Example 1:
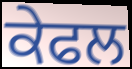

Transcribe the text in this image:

ਕੇਫਲ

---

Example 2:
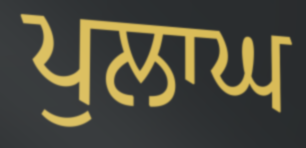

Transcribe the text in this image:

ਪੁਲਾਘ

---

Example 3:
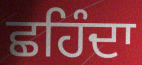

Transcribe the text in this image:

ਛਹਿੰਦਾ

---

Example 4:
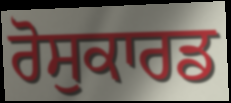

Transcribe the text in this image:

ਰੋਸੁਕਾਰਡ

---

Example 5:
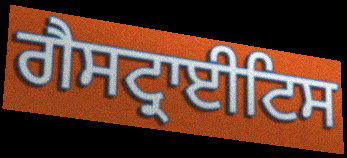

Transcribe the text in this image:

ਗੈਸਟ੍ਰਾਈਟਿਸ